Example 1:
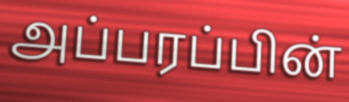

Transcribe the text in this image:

அப்பரப்பின்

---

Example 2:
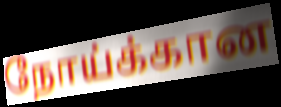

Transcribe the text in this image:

நோய்க்கான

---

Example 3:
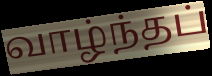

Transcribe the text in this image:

வாழ்ந்தப்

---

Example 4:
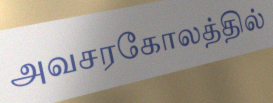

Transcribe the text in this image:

அவசரகோலத்தில்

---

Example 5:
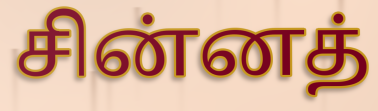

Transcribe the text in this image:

சின்னத்